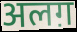
अलग़